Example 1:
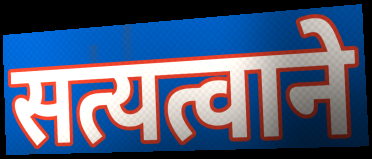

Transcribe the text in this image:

सत्यत्वाने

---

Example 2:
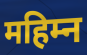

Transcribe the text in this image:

महिम्न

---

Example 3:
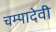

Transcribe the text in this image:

चम्पादेवी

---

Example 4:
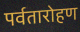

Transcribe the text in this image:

पर्वतारोहण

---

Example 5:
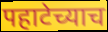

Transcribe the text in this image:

पहाटेच्याच